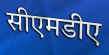
सीएमडीए